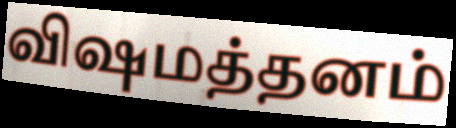
விஷமத்தனம்